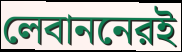
লেবাননেরই